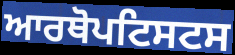
ਆਰਥੋਪਟਿਸਟਸ